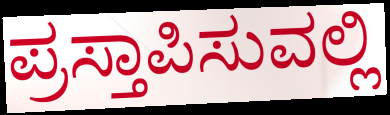
ಪ್ರಸ್ತಾಪಿಸುವಲ್ಲಿ